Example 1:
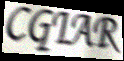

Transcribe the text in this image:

CGIAR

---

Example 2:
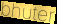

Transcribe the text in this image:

bhuter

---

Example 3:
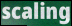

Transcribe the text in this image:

scaling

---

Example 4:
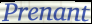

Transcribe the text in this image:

Prenant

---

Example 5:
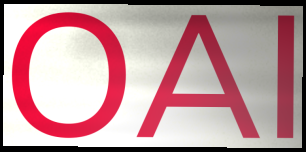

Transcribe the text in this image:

OAI